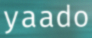
yaado